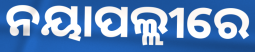
ନୟାପଲ୍ଲୀରେ